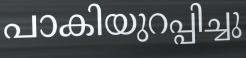
പാകിയുറപ്പിച്ചു